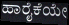
ಹಾರೈಕೆಯೇ